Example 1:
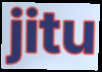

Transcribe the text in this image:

jitu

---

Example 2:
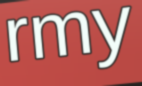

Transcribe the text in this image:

rmy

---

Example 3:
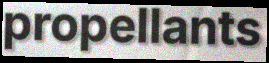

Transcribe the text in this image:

propellants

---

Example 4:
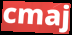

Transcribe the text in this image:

cmaj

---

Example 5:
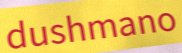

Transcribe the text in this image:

dushmano